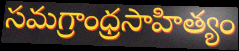
సమగ్రాంధ్రసాహిత్యం